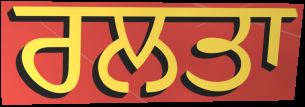
ਰਲਤਾ